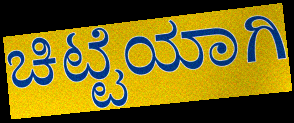
ಚಿಟ್ಟೆಯಾಗಿ